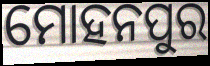
ମୋହନପୁର